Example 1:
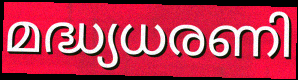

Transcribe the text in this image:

മദ്ധ്യധരണി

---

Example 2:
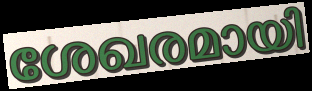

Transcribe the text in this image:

ശേഖരമായി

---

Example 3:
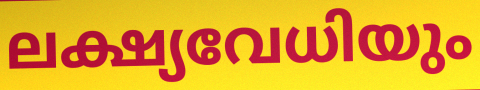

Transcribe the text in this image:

ലക്ഷ്യവേധിയും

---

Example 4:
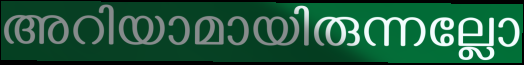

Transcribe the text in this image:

അറിയാമായിരുന്നല്ലോ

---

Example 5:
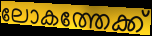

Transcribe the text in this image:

ലോകത്തേക്ക്